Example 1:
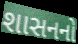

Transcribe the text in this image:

શાસનનો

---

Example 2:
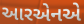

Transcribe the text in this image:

આરએનએ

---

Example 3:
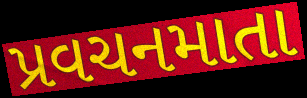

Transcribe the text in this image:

પ્રવચનમાતા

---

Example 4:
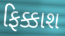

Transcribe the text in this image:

ફિક્કાશ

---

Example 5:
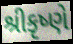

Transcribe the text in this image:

શ્રીકૃષ્ણે